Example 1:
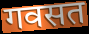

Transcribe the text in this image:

गवसत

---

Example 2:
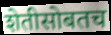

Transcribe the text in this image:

शेतीसोबतच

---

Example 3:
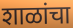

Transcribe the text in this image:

शाळांचा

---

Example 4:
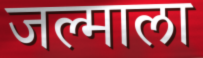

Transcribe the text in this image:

जल्माला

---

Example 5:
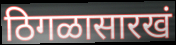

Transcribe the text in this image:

ठिगळासारखं